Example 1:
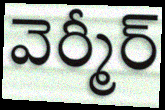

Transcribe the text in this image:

వెర్మీర్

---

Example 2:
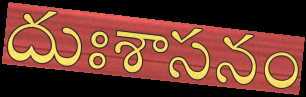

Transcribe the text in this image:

దుఃశాసనం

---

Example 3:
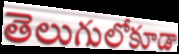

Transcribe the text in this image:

తెలుగులోకూడా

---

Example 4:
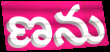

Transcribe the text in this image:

ణను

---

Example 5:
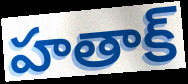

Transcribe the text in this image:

హతాక్